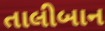
તાલીબાન